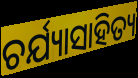
ଚର୍ଯ୍ୟାସାହିତ୍ୟ